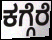
ಕಗ್ಗೆರೆ